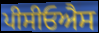
ਪੀਸੀਓਐਸ